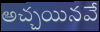
అచ్చయినవే